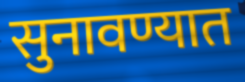
सुनावण्यात